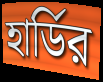
হার্ডির